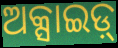
ଅକ୍ସାଇଡ଼୍